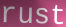
rust